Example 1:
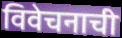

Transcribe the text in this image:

विवेचनाची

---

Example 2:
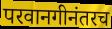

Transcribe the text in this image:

परवानगीनंतरच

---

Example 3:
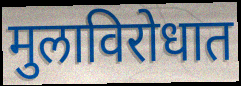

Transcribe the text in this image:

मुलाविरोधात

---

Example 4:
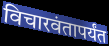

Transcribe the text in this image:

विचारवंतापर्यंत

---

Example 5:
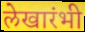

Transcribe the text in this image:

लेखारंभी